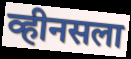
व्हीनसला